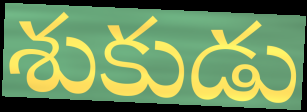
శుకుడు